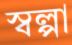
স্বল্পা